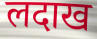
लदाख